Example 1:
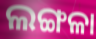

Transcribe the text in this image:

ଲଙ୍ଗଳା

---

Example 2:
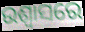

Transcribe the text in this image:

ଉଶ୍ଵାସରେ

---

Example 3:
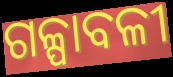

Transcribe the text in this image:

ଗଳ୍ପାବଳୀ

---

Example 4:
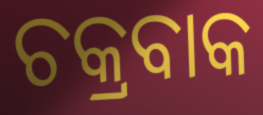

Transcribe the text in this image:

ଚକ୍ରବାକ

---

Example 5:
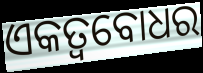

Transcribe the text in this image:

ଏକତ୍ୱବୋଧର